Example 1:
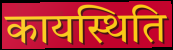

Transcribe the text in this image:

कायस्थिति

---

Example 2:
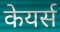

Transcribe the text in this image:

केयर्स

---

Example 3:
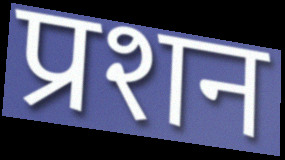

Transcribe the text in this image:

प्रशन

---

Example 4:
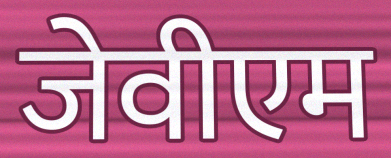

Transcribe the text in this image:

जेवीएम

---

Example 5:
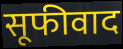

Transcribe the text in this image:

सूफीवाद